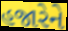
હજારેને